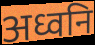
अध्वनि